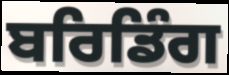
ਬਰਿਡਿੰਗ